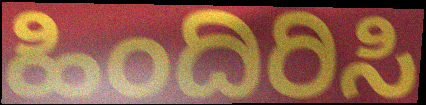
ಹಿಂದಿರಿಸಿ